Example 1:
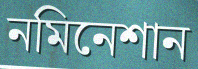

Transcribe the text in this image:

নমিনেশান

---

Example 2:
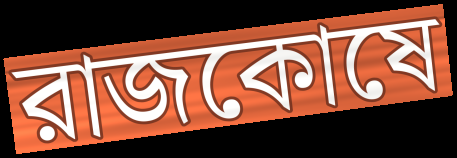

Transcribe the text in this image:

রাজকোষে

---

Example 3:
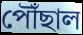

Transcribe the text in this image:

পৌঁছাল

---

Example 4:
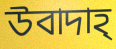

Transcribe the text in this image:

উবাদাহ্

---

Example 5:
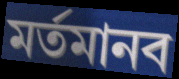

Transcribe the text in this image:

মর্তমানব